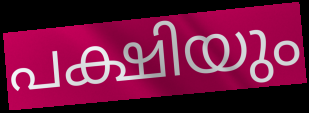
പക്ഷിയും